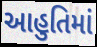
આહુતિમાં